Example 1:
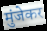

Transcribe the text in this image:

मुंजेकर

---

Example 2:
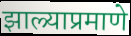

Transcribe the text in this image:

झाल्याप्रमाणे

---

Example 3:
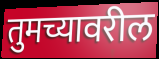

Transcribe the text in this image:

तुमच्यावरील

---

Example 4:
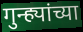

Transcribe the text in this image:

गुन्ह्यांच्या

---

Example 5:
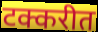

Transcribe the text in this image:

टक्करीत